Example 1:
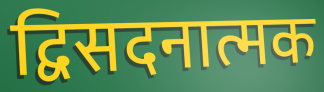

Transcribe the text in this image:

द्विसदनात्मक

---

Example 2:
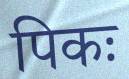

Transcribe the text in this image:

पिकः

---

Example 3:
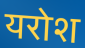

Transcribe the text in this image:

यरोश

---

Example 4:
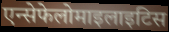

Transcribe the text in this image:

एन्सेफेलोमाइलाइटिस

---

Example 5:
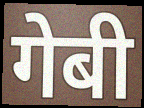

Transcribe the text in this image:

गेबी